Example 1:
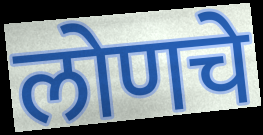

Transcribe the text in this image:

लोणचे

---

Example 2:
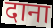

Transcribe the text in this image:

दाना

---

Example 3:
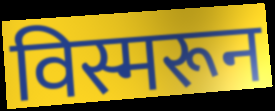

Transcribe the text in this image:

विस्मरून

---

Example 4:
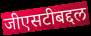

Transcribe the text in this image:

जीएसटीबद्दल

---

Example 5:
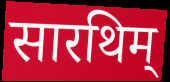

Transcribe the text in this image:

सारथिम्